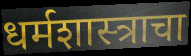
धर्मशास्त्राचा